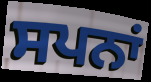
ਸਪਨਾਂ